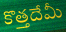
కొత్తదేమీ